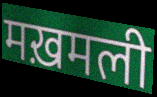
मख़मली